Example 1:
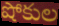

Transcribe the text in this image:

షోకుల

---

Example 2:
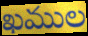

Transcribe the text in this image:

ఖముల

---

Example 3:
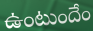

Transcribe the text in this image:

ఉంటుందేం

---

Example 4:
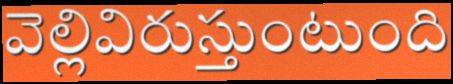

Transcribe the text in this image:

వెల్లివిరుస్తుంటుంది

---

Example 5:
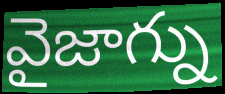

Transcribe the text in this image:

వైజాగ్ను